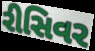
રીસિવર